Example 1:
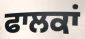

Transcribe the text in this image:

ਫਾਲਕਾਂ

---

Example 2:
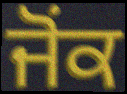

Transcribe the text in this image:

ਜੋਂਕ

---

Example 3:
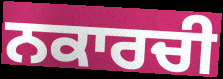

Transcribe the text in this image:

ਨਕਾਰਚੀ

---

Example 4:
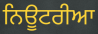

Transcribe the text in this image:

ਨਿਊਟਰੀਆ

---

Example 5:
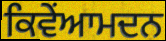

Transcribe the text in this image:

ਕਿਵੇਂਆਮਦਨ